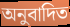
অনুবাদিত